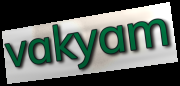
vakyam